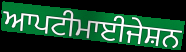
ਆਪਟੀਮਾਈਜੇਸ਼ਨ